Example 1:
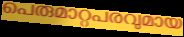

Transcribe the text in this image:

പെരുമാറ്റപരവുമായ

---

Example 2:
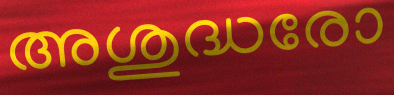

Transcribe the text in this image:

അശുദ്ധരോ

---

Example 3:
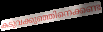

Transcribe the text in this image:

കടുവക്കുഞ്ഞിനെക്കണ്ട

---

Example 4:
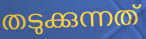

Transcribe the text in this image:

തടുക്കുന്നത്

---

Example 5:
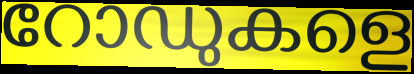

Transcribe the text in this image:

റോഡുകളെ